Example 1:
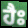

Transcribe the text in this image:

ਹੈਃ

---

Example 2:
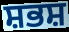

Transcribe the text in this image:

ਸ਼ਭਸ਼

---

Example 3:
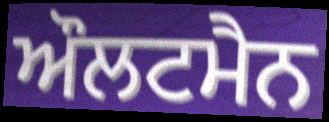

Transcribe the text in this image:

ਔਲਟਮੈਨ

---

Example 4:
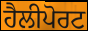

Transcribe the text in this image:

ਹੈਲੀਪੋਰਟ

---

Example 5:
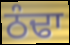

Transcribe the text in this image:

ਠੰਢਾ